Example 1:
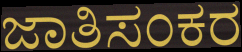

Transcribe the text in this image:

ಜಾತಿಸಂಕರ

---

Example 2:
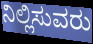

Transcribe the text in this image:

ನಿಲ್ಲಿಸುವರು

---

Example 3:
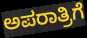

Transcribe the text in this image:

ಅಪರಾತ್ರಿಗೆ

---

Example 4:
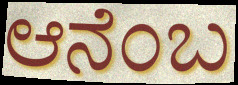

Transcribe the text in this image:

ಆನೆಂಬ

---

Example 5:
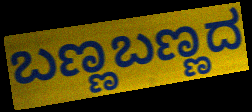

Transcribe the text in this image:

ಬಣ್ಣಬಣ್ಣದ